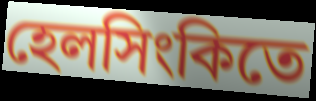
হেলসিংকিতে